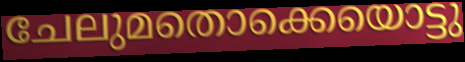
ചേലുമതൊക്കെയൊട്ടു